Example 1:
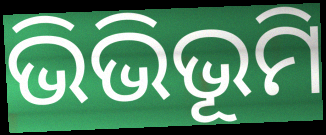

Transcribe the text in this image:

ଭିଭିଭୂମି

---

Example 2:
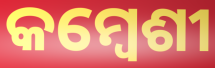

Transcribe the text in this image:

କମ୍ବେଶୀ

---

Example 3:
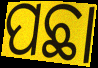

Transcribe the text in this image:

ପଛା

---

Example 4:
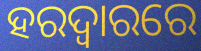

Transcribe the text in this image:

ହରଦ୍ୱାରରେ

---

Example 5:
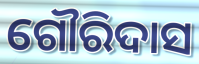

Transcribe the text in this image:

ଗୌରିଦାସ